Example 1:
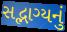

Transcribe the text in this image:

સદ્ભાગ્યનું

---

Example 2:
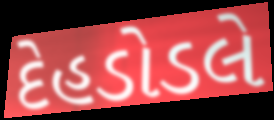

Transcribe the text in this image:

દેહડોડલે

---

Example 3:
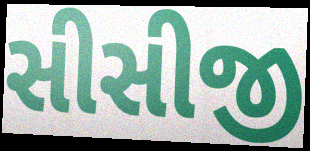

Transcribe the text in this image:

સીસીજી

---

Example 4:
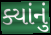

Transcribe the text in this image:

ક્યાંનું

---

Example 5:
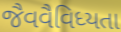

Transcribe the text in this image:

જૈવવૈવિધ્યતા